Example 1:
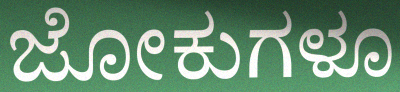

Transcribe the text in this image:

ಜೋಕುಗಳೂ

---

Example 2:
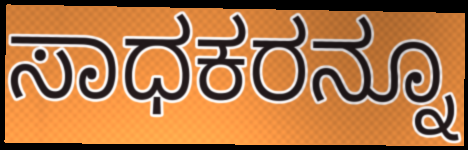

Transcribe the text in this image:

ಸಾಧಕರನ್ನೂ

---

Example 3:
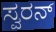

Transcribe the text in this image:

ಸ್ವರನ್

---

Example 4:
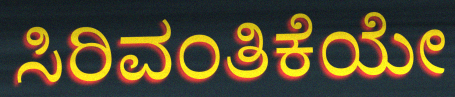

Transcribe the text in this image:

ಸಿರಿವಂತಿಕೆಯೇ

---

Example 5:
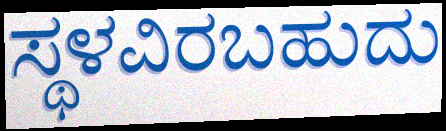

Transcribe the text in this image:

ಸ್ಥಳವಿರಬಹುದು